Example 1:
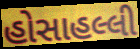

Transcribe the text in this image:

હોસાહલ્લી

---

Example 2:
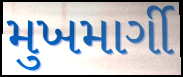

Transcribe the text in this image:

મુખમાર્ગી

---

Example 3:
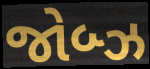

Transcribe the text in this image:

જોબ્ઝ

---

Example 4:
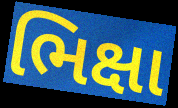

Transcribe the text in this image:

ભિક્ષા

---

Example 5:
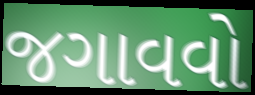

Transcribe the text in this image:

જગાવવો